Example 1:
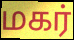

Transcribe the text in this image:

மகர்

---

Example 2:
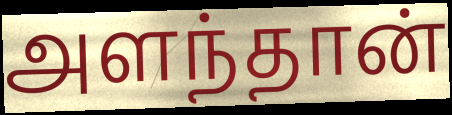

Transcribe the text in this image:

அளந்தான்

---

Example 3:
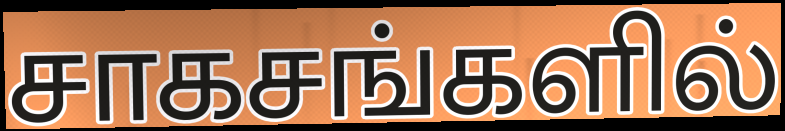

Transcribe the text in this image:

சாகசங்களில்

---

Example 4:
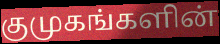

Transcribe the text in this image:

குமுகங்களின்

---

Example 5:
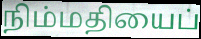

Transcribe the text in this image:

நிம்மதியைப்